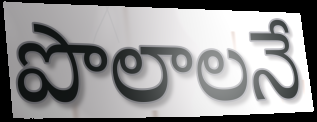
పొలాలనే